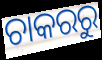
ଚାକରରୁ